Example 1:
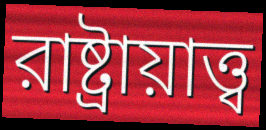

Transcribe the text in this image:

রাষ্ট্রায়াত্ত্ব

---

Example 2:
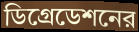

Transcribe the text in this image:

ডিগ্রেডেশনের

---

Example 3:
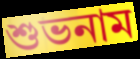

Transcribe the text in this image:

শুভনাম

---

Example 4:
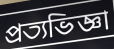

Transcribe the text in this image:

প্রত্যভিজ্ঞা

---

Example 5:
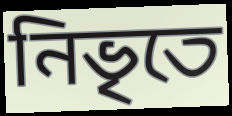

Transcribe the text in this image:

নিভৃতে